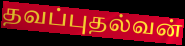
தவப்புதல்வன்